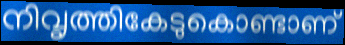
നിവൃത്തികേടുകൊണ്ടാണ്